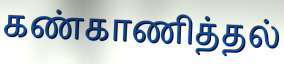
கண்காணித்தல்